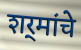
शर्मांचे